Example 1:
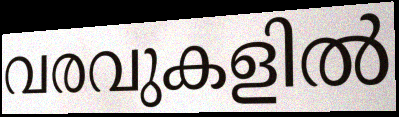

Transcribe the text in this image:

വരവുകളിൽ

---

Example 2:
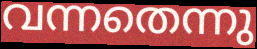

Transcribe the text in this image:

വന്നതെന്നു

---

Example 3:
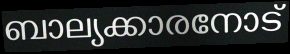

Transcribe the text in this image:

ബാല്യക്കാരനോട്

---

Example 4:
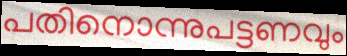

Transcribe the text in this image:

പതിനൊന്നുപട്ടണവും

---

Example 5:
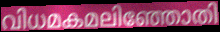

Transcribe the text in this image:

വിധമകമലിഞ്ഞോതി